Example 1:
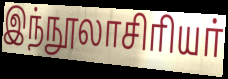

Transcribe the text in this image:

இந்நூலாசிரியர்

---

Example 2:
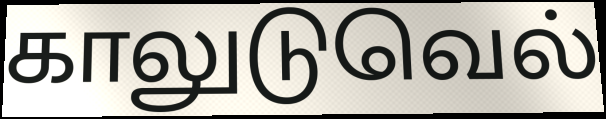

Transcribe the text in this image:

காலுடுவெல்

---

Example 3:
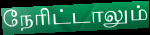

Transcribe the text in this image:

நேரிட்டாலும்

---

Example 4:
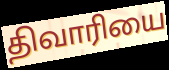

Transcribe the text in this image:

திவாரியை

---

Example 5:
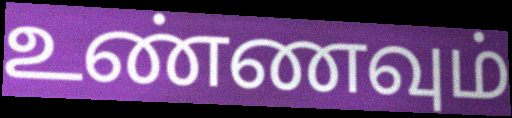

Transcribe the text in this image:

உண்ணவும்